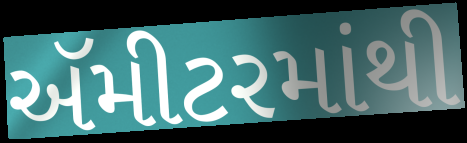
ઍમીટરમાંથી